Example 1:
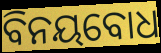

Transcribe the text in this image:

ବିନୟବୋଧ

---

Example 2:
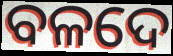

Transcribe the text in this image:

ବଳଦେ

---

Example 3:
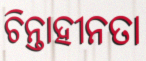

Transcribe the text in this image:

ଚିନ୍ତାହୀନତା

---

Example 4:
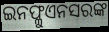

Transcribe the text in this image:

ଇନଫ୍ଳୁଏନସରଙ୍କ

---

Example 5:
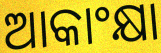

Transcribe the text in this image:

ଆକାଂକ୍ଷା